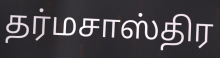
தர்மசாஸ்திர